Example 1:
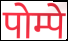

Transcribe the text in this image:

पोम्पे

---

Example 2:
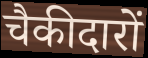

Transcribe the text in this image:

चैकीदारों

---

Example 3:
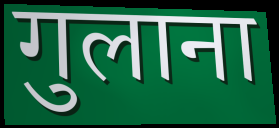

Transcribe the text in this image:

गुलाना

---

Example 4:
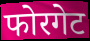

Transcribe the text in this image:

फोरगेट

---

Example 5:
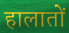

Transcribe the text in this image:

हालातों